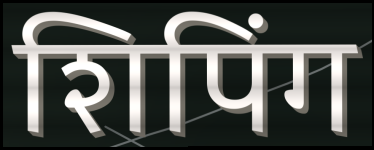
शिपिंग